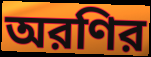
অরণির